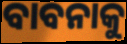
ବାବନାକୁ